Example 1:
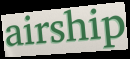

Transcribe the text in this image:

airship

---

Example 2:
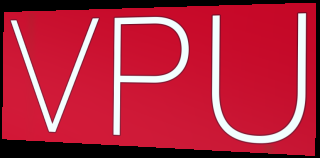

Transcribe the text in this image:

VPU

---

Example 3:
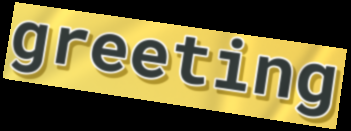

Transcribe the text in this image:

greeting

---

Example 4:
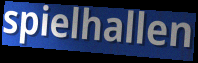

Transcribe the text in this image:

spielhallen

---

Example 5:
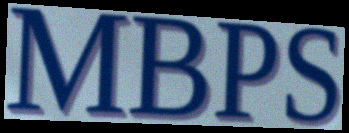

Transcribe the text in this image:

MBPS